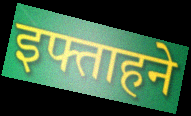
इफ्ताहने